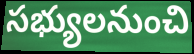
సభ్యులనుంచి